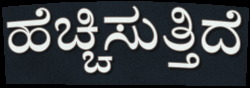
ಹೆಚ್ಚಿಸುತ್ತಿದೆ